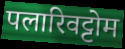
पलारिवट्टोम